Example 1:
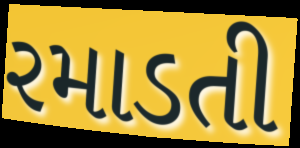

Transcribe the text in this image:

રમાડતી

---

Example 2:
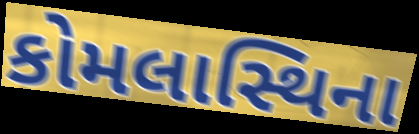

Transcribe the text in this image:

કોમલાસ્થિના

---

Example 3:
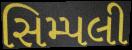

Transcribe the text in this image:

સિમ્પલી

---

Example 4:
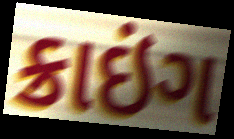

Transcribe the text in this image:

ક્રાઇંગ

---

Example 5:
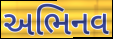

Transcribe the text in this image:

અભિનવ